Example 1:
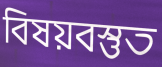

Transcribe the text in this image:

বিষয়বস্তুত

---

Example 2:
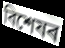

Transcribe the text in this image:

বিশেষৰ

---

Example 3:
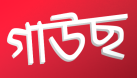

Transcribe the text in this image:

গাউছ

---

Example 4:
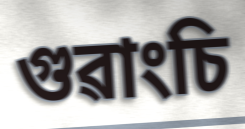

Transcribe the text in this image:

গুৱাংচি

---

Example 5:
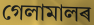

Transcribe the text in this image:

গেলামালৰ